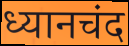
ध्यानचंद